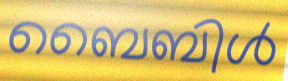
ബൈബിൾ